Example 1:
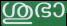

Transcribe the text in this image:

ശുഭാ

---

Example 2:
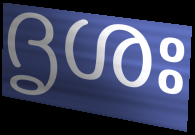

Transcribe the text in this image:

ദൃശഃ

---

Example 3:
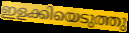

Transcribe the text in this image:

ഇളക്കിയെടുത്തു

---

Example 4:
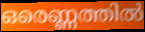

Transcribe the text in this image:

ഒരെണ്ണത്തിൽ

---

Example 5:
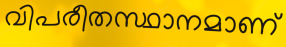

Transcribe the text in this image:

വിപരീതസ്ഥാനമാണ്